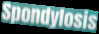
Spondylosis